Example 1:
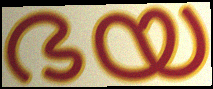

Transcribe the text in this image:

ഭയ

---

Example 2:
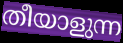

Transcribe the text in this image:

തീയാളുന്ന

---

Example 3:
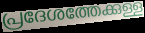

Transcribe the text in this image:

പ്രദേശത്തേക്കുള്ള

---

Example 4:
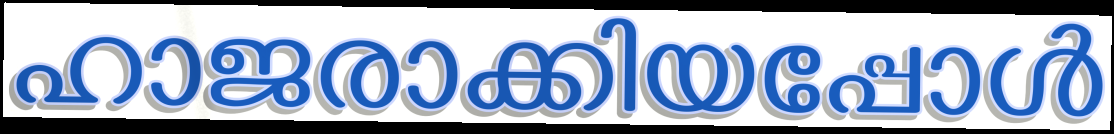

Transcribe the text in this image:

ഹാജരാക്കിയപ്പോൾ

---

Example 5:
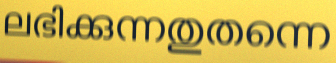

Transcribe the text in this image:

ലഭിക്കുന്നതുതന്നെ